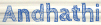
Andhathi